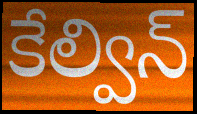
కేల్విన్